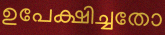
ഉപേക്ഷിച്ചതോ